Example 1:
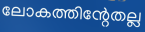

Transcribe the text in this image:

ലോകത്തിന്റേതല്ല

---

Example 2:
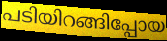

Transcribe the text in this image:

പടിയിറങ്ങിപ്പോയ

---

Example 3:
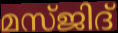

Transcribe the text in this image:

മസ്ജിദ്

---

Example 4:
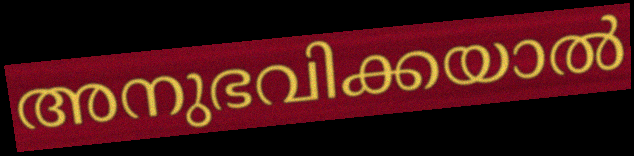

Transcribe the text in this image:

അനുഭവിക്കയാൽ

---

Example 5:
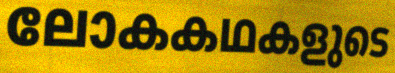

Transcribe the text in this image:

ലോകകഥകളുടെ